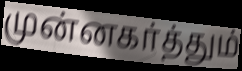
முன்னகர்த்தும்